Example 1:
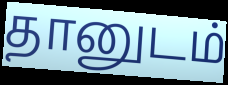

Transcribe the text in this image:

தானுடம்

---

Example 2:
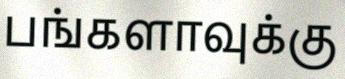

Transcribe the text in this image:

பங்களாவுக்கு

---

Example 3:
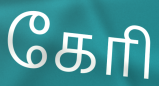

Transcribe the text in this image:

கேரி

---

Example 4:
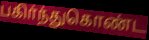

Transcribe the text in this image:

பகிர்ந்துகொண்ட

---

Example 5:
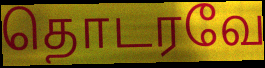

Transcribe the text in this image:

தொடரவே